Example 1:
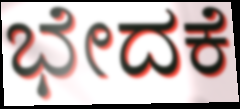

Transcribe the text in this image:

ಭೇದಕೆ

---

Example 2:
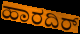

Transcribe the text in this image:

ಹಾರದಿರ್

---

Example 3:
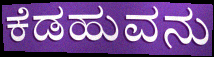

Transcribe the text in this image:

ಕೆಡಹುವನು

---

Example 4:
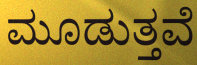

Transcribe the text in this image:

ಮೂಡುತ್ತವೆ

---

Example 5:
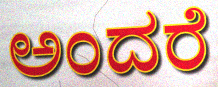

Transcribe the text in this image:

ಅಂದರೆ